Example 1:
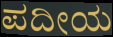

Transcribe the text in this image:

ಪದೀಯ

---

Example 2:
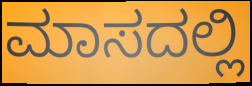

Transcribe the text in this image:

ಮಾಸದಲ್ಲಿ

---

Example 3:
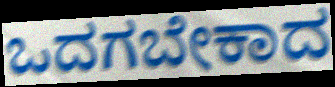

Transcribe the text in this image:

ಒದಗಬೇಕಾದ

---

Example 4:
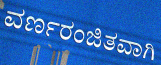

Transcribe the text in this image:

ವರ್ಣರಂಜಿತವಾಗಿ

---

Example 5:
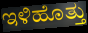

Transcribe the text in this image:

ಇಳಿಹೊತ್ತು